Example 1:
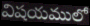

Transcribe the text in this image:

విషయములో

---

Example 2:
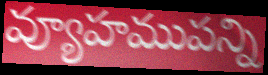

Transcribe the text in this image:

వ్యూహముపన్ని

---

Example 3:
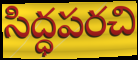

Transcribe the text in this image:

సిద్ధపరచి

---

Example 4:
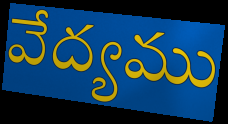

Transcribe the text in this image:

వేద్యము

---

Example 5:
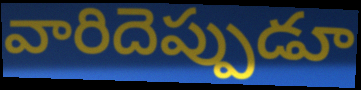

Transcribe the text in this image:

వారిదెప్పుడూ